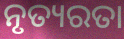
ନୃତ୍ୟରତା